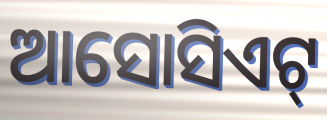
ଆସୋସିଏଟ୍